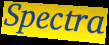
Spectra